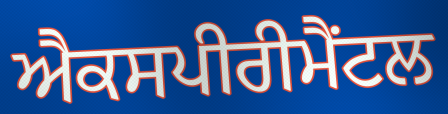
ਐਕਸਪੀਰੀਮੈਂਟਲ